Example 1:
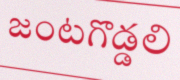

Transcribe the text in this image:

జంటగొడ్డలి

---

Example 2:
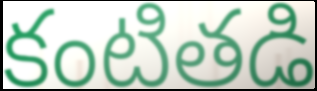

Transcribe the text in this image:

కంటితడి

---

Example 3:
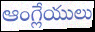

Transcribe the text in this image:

ఆంగ్లేయులు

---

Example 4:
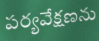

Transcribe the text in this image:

పర్యవేక్షణను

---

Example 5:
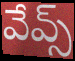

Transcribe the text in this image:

వేవ్స్